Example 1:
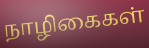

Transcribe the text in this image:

நாழிகைகள்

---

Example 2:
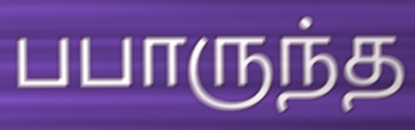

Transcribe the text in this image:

பபாருந்த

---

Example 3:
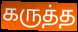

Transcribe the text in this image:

கருத்த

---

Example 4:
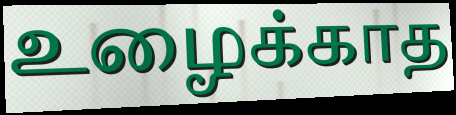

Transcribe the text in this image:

உழைக்காத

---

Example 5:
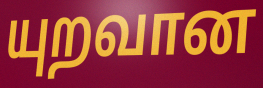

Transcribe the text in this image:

யுறவான